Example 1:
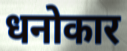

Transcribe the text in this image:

धनोकार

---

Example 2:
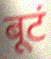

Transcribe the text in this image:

बूटं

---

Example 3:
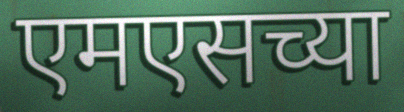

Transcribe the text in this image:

एमएसच्या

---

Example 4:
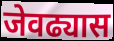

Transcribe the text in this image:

जेवढ्यास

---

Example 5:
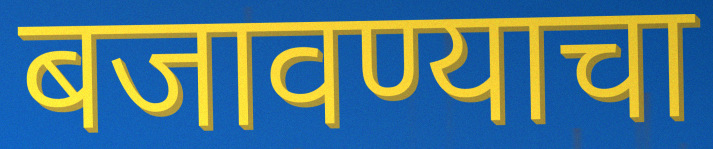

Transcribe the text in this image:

बजावण्याचा